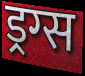
ड्रग्‍स